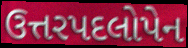
ઉત્તરપદલોપેન